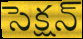
సెక్షన్